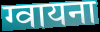
ग्वायना